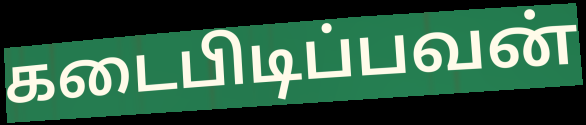
கடைபிடிப்பவன்